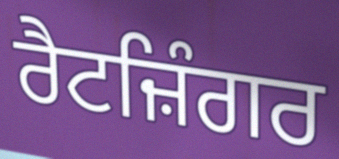
ਰੈਟਜ਼ਿੰਗਰ